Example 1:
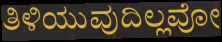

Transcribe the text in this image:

ತಿಳಿಯುವುದಿಲ್ಲವೋ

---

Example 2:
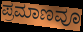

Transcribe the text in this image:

ಪ್ರಮಾಣವೂ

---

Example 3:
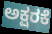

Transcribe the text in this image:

ಅಕ್ಷರಕೆ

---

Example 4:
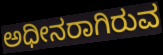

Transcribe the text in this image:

ಅಧೀನರಾಗಿರುವ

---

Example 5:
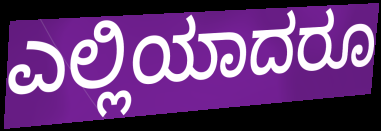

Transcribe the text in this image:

ಎಲ್ಲಿಯಾದರೂ